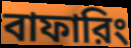
বাফারিং